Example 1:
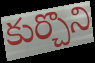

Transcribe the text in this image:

కుర్చొని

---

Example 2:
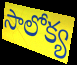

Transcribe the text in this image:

సాలోక్య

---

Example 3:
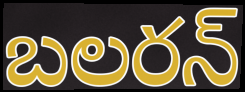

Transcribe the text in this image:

బలరన్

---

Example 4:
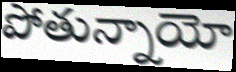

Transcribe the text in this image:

పోతున్నాయో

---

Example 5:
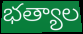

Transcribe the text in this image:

భత్యాల